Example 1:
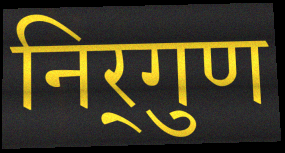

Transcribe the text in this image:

निर्गुण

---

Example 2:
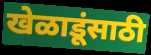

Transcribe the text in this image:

खेळाडूंसाठी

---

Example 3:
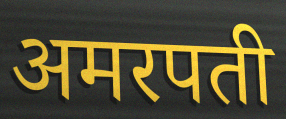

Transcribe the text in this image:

अमरपती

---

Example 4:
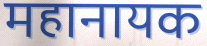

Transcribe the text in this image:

महानायक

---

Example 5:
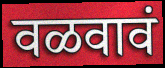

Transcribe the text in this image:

वळवावं